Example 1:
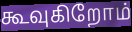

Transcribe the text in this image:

கூவுகிறோம்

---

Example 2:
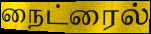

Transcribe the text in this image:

நைட்ரைல்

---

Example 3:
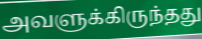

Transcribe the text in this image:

அவளுக்கிருந்தது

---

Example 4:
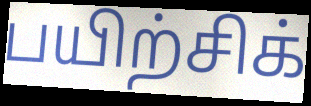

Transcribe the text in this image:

பயிற்சிக்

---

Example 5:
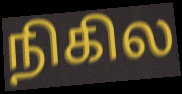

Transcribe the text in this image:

நிகில